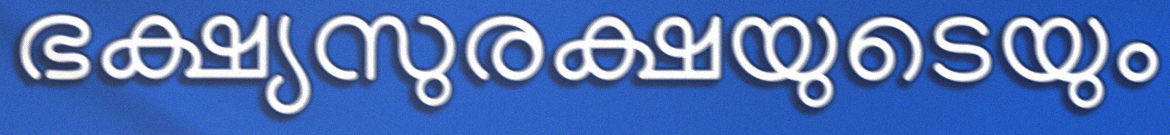
ഭക്ഷ്യസുരക്ഷയുടെയും